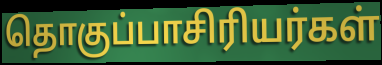
தொகுப்பாசிரியர்கள்